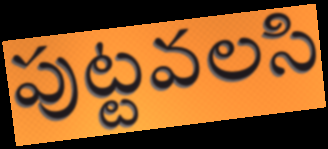
పుట్టవలసి